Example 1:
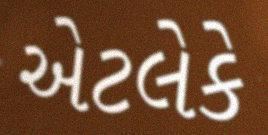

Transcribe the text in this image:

એટલેકે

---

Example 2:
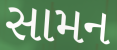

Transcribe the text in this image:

સામન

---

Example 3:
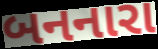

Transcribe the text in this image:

બનનારા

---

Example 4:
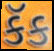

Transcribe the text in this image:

કૅક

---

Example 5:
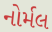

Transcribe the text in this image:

નોર્મલ